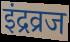
इंद्रव्रज